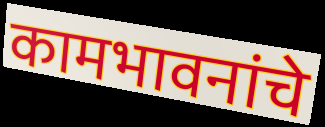
कामभावनांचे